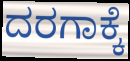
ದರಗಾಕ್ಕೆ